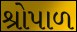
શ્રોપાળ